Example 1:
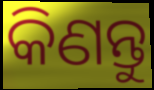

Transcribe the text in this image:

କିଣନ୍ତୁ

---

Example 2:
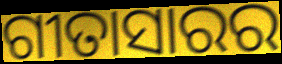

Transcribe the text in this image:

ଗୀତାସାରର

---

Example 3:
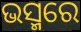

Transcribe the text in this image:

ଭସ୍ମରେ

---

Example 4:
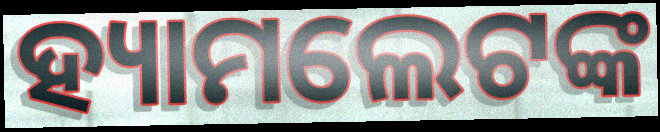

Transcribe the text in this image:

ହ୍ୟାମଲେଟଙ୍କ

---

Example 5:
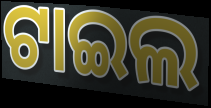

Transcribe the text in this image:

ଟାଇଲ